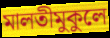
মালতীমুকুলে